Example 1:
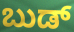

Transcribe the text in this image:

ಬುಡ್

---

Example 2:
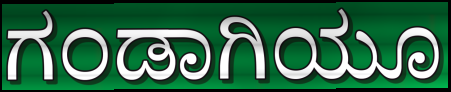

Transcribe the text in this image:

ಗಂಡಾಗಿಯೂ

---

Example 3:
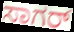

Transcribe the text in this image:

ಸಾಗರ್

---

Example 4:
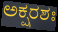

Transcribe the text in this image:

ಅಕ್ಷರಶಃ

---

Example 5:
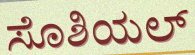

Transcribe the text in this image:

ಸೊಶಿಯಲ್